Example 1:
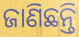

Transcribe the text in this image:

ଜାଣିଛନ୍ତି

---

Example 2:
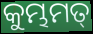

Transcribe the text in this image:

କୁମ୍ଭମତ୍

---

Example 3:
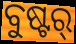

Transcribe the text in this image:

ବୁଷ୍ଟର୍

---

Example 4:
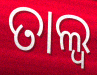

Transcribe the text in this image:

ତାଲ୍ୱ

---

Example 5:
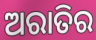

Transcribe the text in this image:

ଅରାତିର